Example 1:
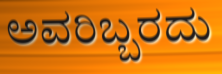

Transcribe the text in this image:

ಅವರಿಬ್ಬರದು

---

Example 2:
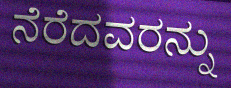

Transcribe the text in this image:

ನೆರೆದವರನ್ನು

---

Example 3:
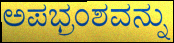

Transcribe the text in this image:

ಅಪಭ್ರಂಶವನ್ನು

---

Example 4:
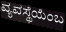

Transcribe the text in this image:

ವ್ಯವಸ್ಥೆಯೆಂಬ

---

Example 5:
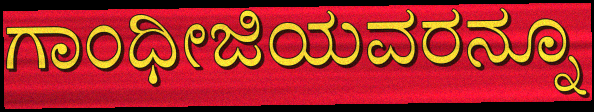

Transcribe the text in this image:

ಗಾಂಧೀಜಿಯವರನ್ನೂ